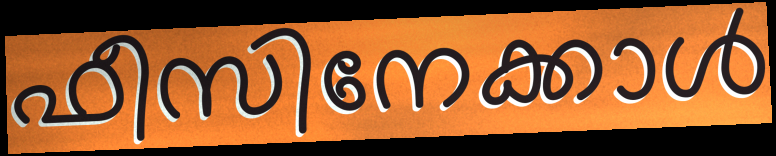
ഫീസിനേക്കാൾ